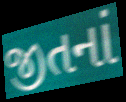
જીતનાં